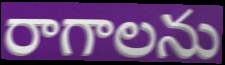
రాగాలను